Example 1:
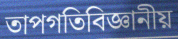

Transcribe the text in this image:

তাপগতিবিজ্ঞানীয়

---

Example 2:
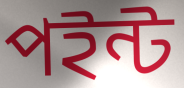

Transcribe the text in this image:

পইন্ট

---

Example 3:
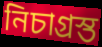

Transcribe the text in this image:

নিচাগ্ৰস্ত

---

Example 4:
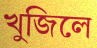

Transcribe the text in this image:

খুজিলে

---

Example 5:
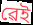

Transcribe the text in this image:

ৱেই